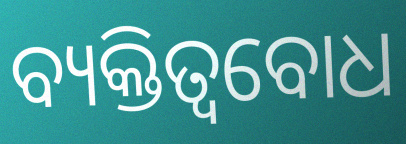
ବ୍ୟକ୍ତିତ୍ୱବୋଧ